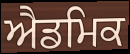
ਐਡਮਿਕ